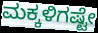
ಮಕ್ಕಳಿಗಷ್ಟೇ